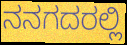
ನನಗದರಲ್ಲಿ